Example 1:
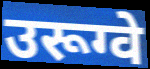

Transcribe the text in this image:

उरूग्वे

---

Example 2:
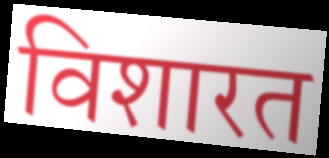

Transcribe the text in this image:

विशारत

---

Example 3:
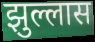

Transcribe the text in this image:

झुल्लास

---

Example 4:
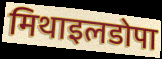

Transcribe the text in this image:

मिथाइलडोपा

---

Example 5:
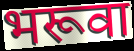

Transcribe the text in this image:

भरूवा